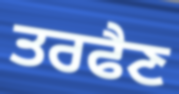
ਤਰਫੈਣ